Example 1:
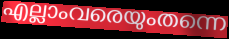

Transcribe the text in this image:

എല്ലാംവരെയുംതന്നെ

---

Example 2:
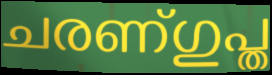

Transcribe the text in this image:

ചരണ്ഗുപ്ത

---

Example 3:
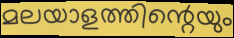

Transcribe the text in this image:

മലയാളത്തിന്റെയും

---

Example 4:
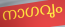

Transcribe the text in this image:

നാഗവും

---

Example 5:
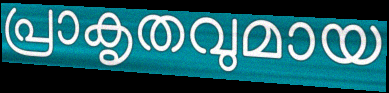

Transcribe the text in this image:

പ്രാകൃതവുമായ